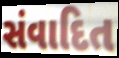
સંવાદિત